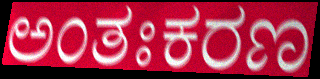
ಅಂತಃಕರಣ